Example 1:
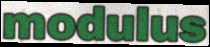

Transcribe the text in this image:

modulus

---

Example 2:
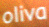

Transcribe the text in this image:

oliva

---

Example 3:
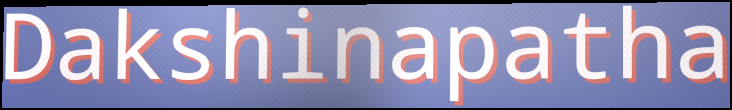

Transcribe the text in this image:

Dakshinapatha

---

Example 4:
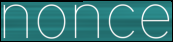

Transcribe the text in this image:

nonce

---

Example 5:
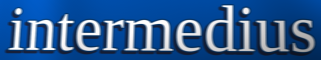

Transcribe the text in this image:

intermedius